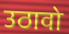
उठावो